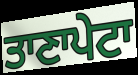
ਤਾਣਾਪੇਟਾ